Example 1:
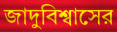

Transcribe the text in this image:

জাদুবিশ্বাসের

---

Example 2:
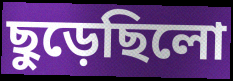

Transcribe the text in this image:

ছুড়েছিলো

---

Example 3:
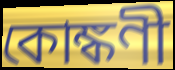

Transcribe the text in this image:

কোঙ্কণী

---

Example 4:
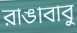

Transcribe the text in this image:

রাঙাবাবু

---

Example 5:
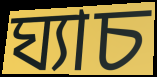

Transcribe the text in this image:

ঘ্যাচ